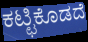
ಕಟ್ಟಿಕೊಡದೆ